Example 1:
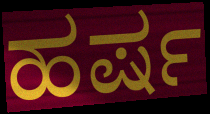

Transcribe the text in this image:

ಹರ್ಷ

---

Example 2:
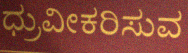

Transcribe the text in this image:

ಧ್ರುವೀಕರಿಸುವ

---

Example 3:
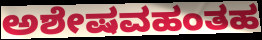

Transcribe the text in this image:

ಅಶೇಷವಹಂತಹ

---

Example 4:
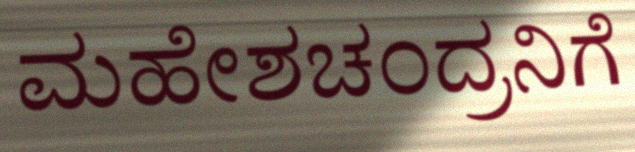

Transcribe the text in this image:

ಮಹೇಶಚಂದ್ರನಿಗೆ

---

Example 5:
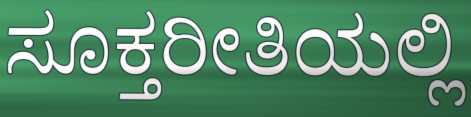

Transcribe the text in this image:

ಸೂಕ್ತರೀತಿಯಲ್ಲಿ